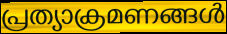
പ്രത്യാക്രമണങ്ങൾ